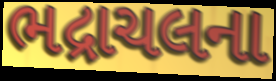
ભદ્રાચલના